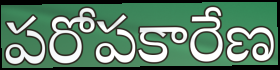
పరోపకారేణ